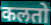
कलतो